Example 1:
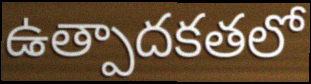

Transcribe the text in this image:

ఉత్పాదకతలో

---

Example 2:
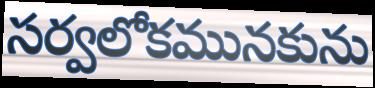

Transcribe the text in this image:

సర్వలోకమునకును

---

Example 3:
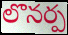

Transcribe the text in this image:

లొనర్ప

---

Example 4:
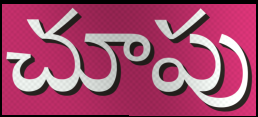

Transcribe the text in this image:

చూపు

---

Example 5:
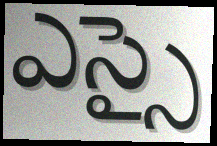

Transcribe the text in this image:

ఎస్సై